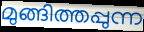
മുങ്ങിത്തപ്പുന്ന